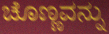
ಚೊಣ್ಣವನ್ನು